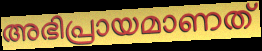
അഭിപ്രായമാണത്